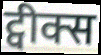
ट्वीक्स